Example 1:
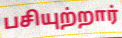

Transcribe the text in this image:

பசியுற்றார்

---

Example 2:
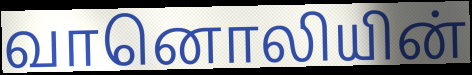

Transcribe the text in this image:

வானொலியின்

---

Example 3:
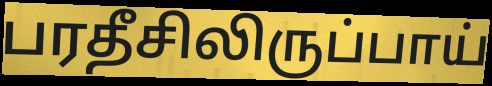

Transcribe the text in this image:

பரதீசிலிருப்பாய்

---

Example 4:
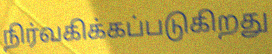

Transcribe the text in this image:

நிர்வகிக்கப்படுகிறது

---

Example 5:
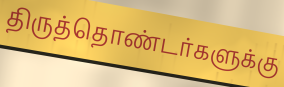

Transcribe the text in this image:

திருத்தொண்டர்களுக்கு